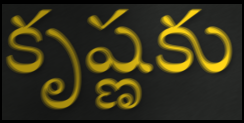
కృష్ణకు